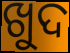
ଖୁଦ